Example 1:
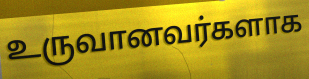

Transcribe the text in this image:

உருவானவர்களாக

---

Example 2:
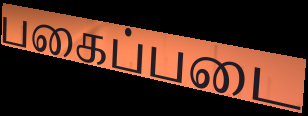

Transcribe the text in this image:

பகைப்படை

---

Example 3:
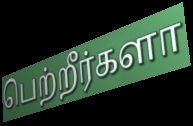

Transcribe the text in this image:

பெற்றீர்களா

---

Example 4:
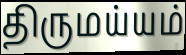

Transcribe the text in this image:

திருமய்யம்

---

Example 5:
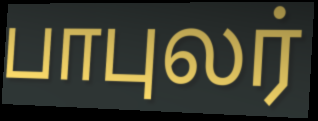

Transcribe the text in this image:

பாபுலர்